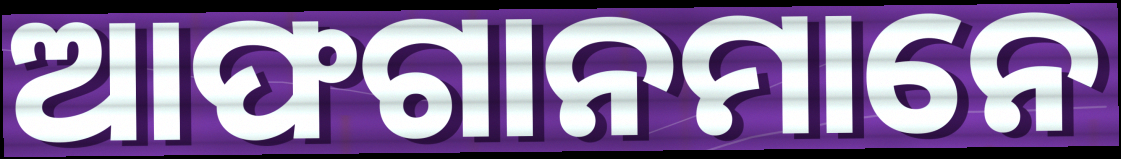
ଆଫଗାନମାନେ